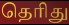
தெரிது